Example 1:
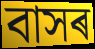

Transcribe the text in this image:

বাসৰ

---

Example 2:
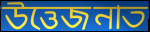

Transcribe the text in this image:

উত্তেজনাত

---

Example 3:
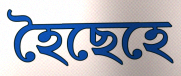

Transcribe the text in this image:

হৈছেহে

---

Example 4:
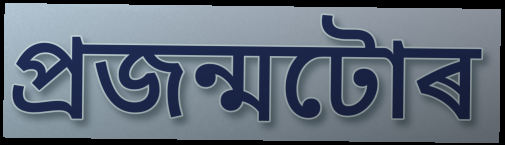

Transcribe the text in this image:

প্ৰজন্মটোৰ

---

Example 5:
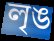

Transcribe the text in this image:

লৃঙ